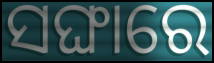
ସଙ୍ଘାରେ